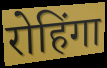
रोहिंगा